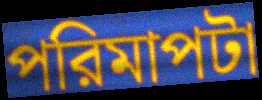
পরিমাপটা